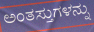
ಅಂತಸ್ತುಗಳನ್ನು